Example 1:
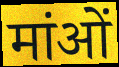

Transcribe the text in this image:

मांओं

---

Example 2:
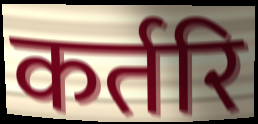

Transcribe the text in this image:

कर्तरि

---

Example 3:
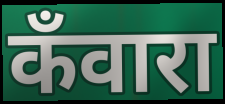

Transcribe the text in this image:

कँवारा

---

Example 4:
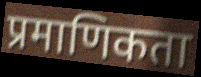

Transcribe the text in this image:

प्रमाणिकता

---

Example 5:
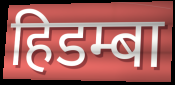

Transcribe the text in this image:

हिडम्बा